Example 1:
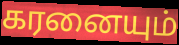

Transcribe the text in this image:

கரனையும்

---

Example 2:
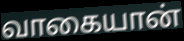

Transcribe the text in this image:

வாகையான்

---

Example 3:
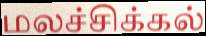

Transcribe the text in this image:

மலச்சிக்கல்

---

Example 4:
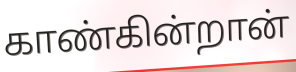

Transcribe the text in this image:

காண்கின்றான்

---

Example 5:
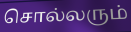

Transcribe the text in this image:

சொல்லரும்